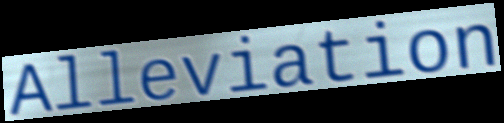
Alleviation